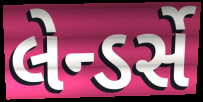
લેન્ડર્સે